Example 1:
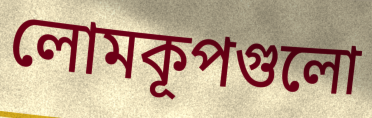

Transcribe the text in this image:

লোমকূপগুলো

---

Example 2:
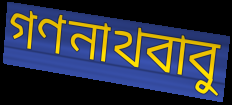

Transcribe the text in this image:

গণনাথবাবু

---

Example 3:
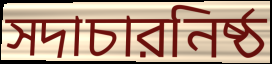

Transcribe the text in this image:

সদাচারনিষ্ঠ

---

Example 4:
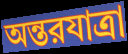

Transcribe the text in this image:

অন্তরযাত্রা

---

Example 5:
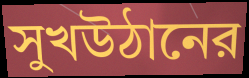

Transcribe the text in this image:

সুখউঠানের